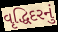
વૃદ્ધિદરનું